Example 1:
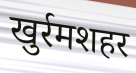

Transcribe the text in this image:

खुर्रमशहर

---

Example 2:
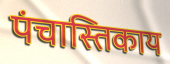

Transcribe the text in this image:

पंचास्तिकाय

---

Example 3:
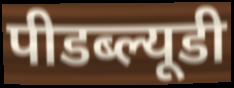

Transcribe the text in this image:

पीडब्ल्यूडी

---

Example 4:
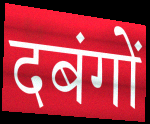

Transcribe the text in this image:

दबंगों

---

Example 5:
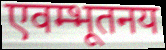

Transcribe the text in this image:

एवम्भूतनय